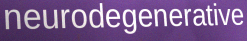
neurodegenerative